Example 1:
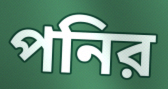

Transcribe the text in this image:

পনির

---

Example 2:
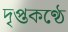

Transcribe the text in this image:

দৃপ্তকণ্ঠে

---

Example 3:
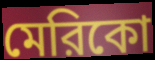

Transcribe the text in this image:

মেরিকো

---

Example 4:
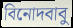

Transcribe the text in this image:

বিনোদবাবু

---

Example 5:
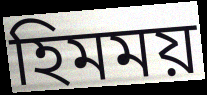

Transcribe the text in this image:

হিমময়